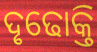
ଦୃଢୋକ୍ତି